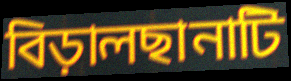
বিড়ালছানাটি